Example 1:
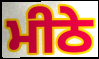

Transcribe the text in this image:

ਮੀਠੇ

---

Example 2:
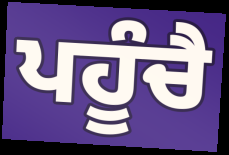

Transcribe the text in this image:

ਪਹੂੰਚੈ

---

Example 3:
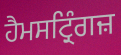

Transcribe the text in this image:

ਹੈਮਸਟ੍ਰਿੰਗਜ਼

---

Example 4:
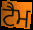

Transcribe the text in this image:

ਟੈਮ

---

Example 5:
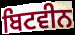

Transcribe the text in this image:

ਬਿਟਵੀਨ